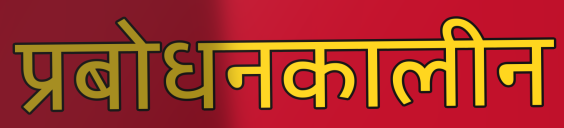
प्रबोधनकालीन